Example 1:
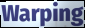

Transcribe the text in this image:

Warping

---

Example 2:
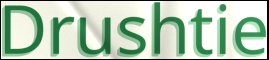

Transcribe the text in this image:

Drushtie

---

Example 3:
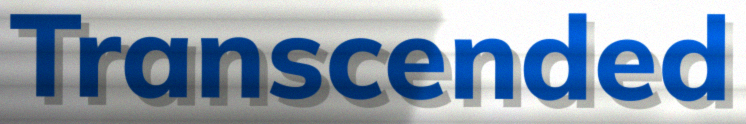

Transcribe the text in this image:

Transcended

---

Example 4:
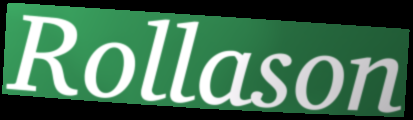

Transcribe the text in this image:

Rollason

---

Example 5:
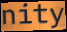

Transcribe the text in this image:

nity